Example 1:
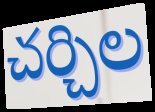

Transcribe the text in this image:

చర్చిల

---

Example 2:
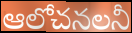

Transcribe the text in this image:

ఆలోచనలనీ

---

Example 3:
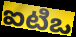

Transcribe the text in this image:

ఐటిఒ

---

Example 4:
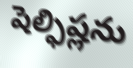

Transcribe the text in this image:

షెల్ఫిష్లను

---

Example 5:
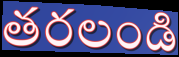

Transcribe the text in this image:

తరలండి